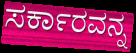
ಸರ್ಕಾರವನ್ನ